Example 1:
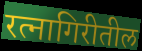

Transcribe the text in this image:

रत्नागिरीतील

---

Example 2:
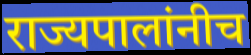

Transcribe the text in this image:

राज्यपालांनीच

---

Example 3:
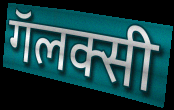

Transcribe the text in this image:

गॅलक्सी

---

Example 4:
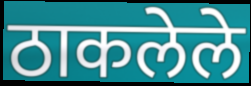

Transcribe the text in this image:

ठाकलेले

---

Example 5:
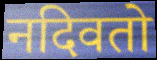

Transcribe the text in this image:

नदिवतो